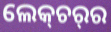
ଲେକ୍‌ଚର୍‌ର